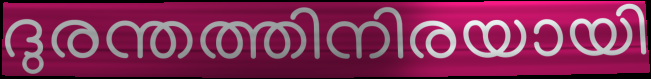
ദുരന്തത്തിനിരയായി